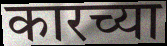
कारच्या